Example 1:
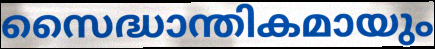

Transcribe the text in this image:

സൈദ്ധാന്തികമായും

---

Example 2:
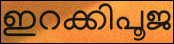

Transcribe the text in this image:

ഇറക്കിപൂജ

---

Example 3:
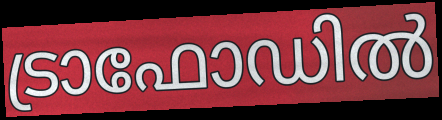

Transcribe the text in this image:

ട്രാഫോഡിൽ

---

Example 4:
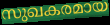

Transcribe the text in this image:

സുഖകരമായ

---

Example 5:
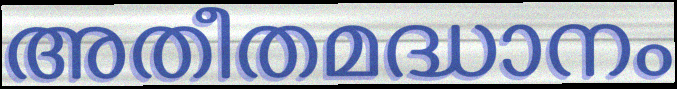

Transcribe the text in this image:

അതീതമദ്ധാനം